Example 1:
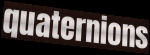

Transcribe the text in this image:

quaternions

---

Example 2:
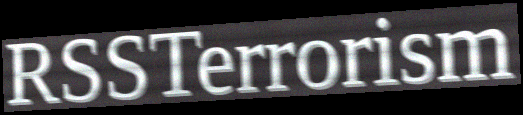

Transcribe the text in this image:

RSSTerrorism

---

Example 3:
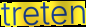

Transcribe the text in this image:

treten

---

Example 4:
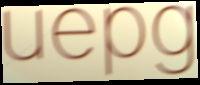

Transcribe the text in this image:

uepg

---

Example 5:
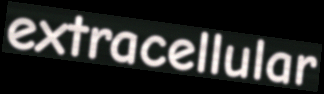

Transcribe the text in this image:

extracellular